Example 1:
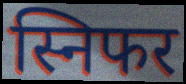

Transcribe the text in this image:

स्निफर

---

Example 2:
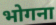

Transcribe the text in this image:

भोगना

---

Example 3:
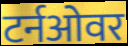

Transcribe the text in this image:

टर्नओवर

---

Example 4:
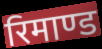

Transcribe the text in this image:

रिमाण्ड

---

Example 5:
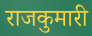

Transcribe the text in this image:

राजकुमारी